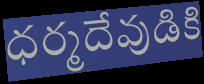
ధర్మదేవుడికి